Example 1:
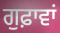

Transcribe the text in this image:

ਗੁਫ਼ਾਵਾਂ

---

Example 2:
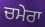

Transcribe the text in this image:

ਚਮੇਰਾ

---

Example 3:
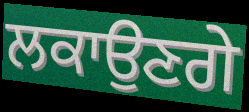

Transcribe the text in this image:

ਲਕਾਉਣਗੇ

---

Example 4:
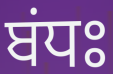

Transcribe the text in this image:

ਬਂਧਃ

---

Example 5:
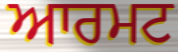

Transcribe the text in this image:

ਆਰਮਟ